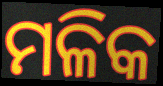
ମଳିକ